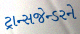
ટ્રાન્સજેન્ડરને